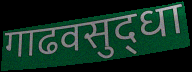
गाढवसुद्धा